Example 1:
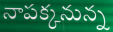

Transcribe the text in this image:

నాపక్కనున్న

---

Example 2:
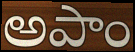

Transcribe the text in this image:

అపాం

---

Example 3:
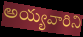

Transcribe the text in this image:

అయ్యవారిని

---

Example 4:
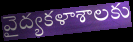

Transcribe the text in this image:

వైద్యకళాశాలకు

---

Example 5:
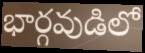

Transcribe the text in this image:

భార్గవుడిలో